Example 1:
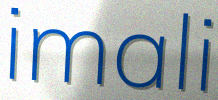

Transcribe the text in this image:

imali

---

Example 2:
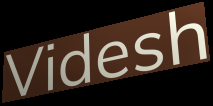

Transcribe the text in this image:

Videsh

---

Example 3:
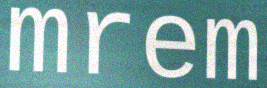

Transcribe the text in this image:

mrem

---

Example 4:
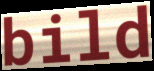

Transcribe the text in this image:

bild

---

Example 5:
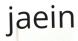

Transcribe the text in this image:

jaein